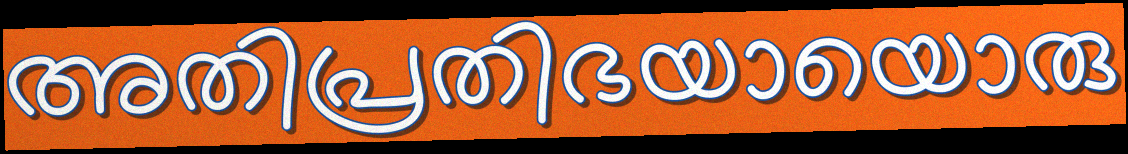
അതിപ്രതിഭയായൊരു